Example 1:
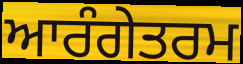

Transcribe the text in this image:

ਆਰੰਗੇਤਰਮ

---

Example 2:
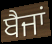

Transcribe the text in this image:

ਬੈਜਾਂ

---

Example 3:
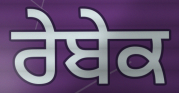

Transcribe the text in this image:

ਰੇਬੇਕ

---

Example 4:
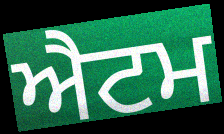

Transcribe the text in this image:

ਐਟਮ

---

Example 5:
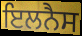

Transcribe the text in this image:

ਇਲਨੈਸ